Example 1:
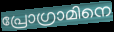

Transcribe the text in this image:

പ്രോഗ്രാമിനെ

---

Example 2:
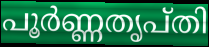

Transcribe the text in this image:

പൂർണ്ണതൃപ്തി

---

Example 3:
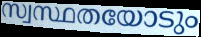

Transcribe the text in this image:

സ്വസ്ഥതയോടും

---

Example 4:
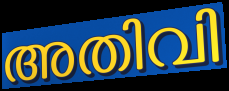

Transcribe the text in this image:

അതിവി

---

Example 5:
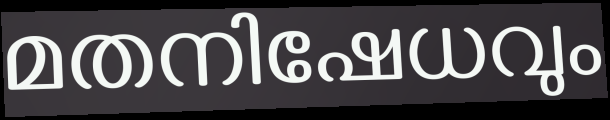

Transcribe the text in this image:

മതനിഷേധവും